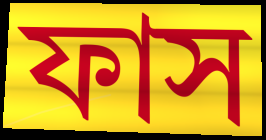
ফাস